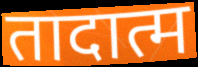
तादात्म